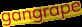
gangrape